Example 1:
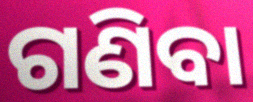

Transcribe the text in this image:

ଗଣିବା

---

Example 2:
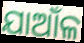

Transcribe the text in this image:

ଯାଆଁଳ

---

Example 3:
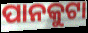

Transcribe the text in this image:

ପାନକୁଟା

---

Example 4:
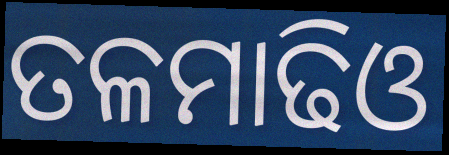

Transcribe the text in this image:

ତଳମାଢିଓ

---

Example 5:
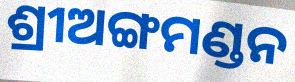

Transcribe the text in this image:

ଶ୍ରୀଅଙ୍ଗମଣ୍ଡନ